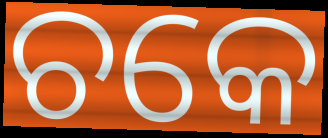
ଚକେ